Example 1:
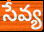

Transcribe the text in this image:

సేవ్య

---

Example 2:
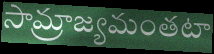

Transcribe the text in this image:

సామ్రాజ్యమంతటా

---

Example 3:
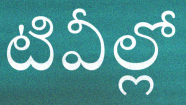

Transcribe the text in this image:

టివీల్లో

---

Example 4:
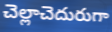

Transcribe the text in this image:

చెల్లాచెదురుగా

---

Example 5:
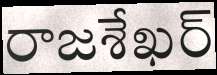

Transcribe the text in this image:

రాజశేఖర్